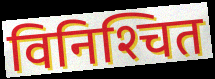
विनिश्चित